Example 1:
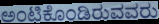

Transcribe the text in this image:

ಅಂಟಿಕೊಂಡಿರುವವರು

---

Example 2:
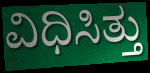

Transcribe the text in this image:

ವಿಧಿಸಿತ್ತು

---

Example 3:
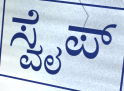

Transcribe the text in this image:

ಸ್ವೈಪ್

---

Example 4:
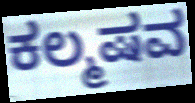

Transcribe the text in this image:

ಕಲ್ಮಷವ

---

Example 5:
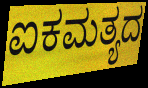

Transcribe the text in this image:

ಐಕಮತ್ಯದ